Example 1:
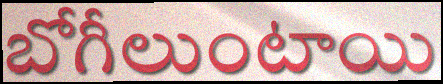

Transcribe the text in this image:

బోగీలుంటాయి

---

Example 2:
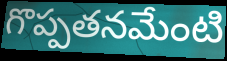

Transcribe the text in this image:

గొప్పతనమేంటి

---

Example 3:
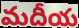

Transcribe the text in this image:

మదీయ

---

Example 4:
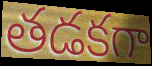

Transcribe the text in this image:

తడకగా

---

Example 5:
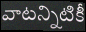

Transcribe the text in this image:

వాటన్నిటికీ